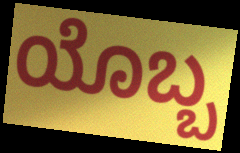
ಯೊಬ್ಬ